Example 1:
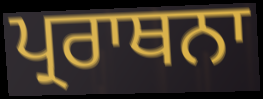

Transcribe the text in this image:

ਪ੍ਰਰਾਥਨਾ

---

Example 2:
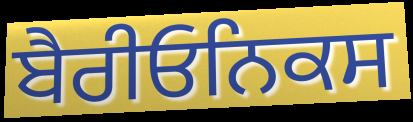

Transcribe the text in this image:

ਬੈਰੀਓਨਿਕਸ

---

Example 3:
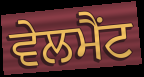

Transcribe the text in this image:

ਵੇਲਮੈਂਟ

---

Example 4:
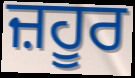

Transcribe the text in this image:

ਜ਼ਹੂਰ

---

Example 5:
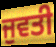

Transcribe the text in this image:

ਜੁਵਤੀ